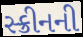
સ્ક્રીનની